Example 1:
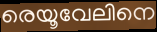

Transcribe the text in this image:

രെയൂവേലിനെ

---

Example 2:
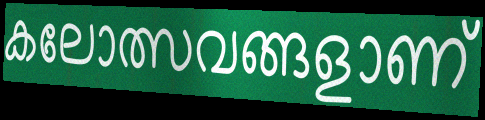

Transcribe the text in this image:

കലോത്സവങ്ങളാണ്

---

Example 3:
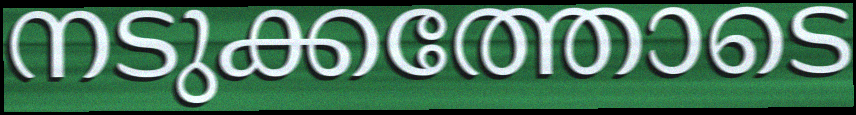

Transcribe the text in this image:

നടുക്കത്തോടെ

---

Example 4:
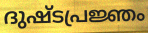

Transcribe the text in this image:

ദുഷ്ടപ്രജ്ഞം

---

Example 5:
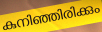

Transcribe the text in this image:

കുനിഞ്ഞിരിക്കും